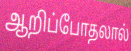
ஆறிப்போதலால்